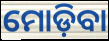
ମୋଡ଼ିବା